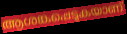
ആശങ്കപ്പെടുകയാണ്